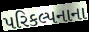
પરિકલ્પનાના